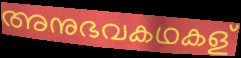
അനുഭവകഥകള്